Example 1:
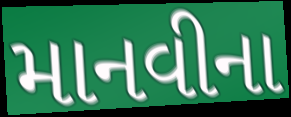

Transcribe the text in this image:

માનવીના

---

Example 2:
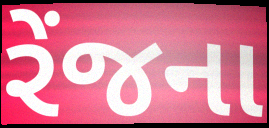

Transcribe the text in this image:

રેંજના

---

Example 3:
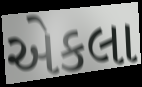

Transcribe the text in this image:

એકલા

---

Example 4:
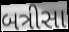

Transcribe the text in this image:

બત્રીસા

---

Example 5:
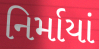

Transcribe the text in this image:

નિર્માયાં